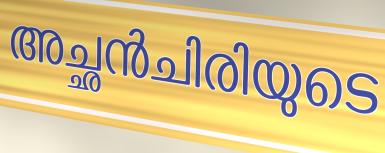
അച്ഛൻചിരിയുടെ